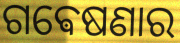
ଗଵେଷଣାର